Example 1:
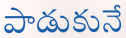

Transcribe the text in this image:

పాడుకునే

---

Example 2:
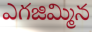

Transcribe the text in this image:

ఎగజిమ్మిన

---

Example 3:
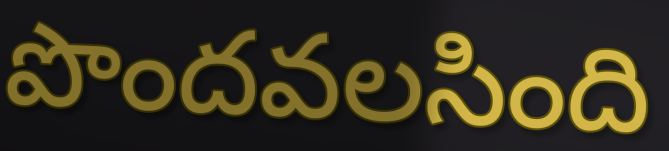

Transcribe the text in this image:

పొందవలసింది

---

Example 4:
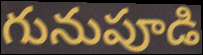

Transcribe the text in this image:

గునుపూడి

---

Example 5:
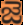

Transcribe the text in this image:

జె